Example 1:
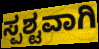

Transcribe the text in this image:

ಸ್ಪಶ್ಟವಾಗಿ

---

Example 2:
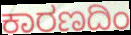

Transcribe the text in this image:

ಕಾರಣದಿಂ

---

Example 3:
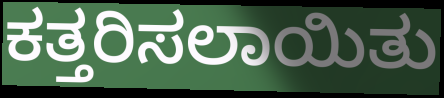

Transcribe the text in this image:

ಕತ್ತರಿಸಲಾಯಿತು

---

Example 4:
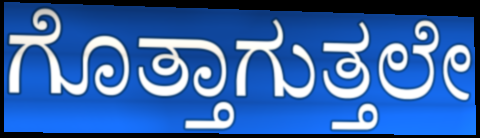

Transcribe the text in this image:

ಗೊತ್ತಾಗುತ್ತಲೇ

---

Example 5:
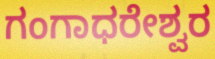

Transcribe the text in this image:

ಗಂಗಾಧರೇಶ್ವರ